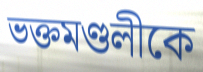
ভক্তমণ্ডলীকে